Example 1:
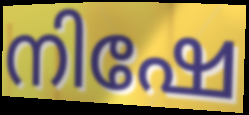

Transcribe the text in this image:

നിഷേ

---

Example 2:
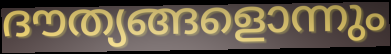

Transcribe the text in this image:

ദൗത്യങ്ങളൊന്നും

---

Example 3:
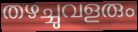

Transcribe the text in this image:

തഴച്ചുവളരും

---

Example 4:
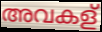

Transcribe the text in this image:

അവകള്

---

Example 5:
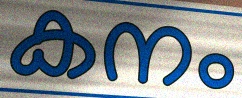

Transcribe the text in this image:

കനം